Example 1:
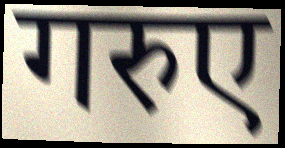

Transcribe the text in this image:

गरुए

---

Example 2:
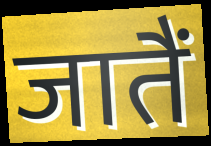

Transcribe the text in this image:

जातैं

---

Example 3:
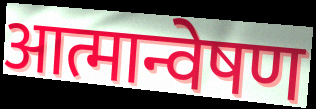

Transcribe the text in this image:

आत्मान्वेषण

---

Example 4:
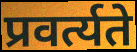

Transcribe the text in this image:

प्रवर्त्यते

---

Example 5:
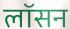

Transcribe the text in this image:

लॉसन